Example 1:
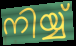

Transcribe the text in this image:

നിയ്യ്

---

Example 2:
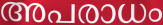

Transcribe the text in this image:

അപരാധം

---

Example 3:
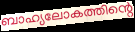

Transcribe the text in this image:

ബാഹ്യലോകത്തിന്റെ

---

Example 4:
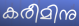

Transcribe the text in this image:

കരീമിനു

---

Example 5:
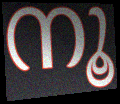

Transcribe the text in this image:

നൂ